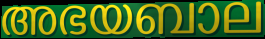
അഭയബാല